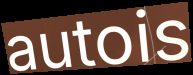
autois